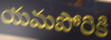
యమపోరికి